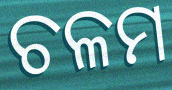
ଚଳମ